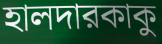
হালদারকাকু